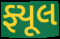
ફ્યૂલ